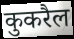
कुकरैल